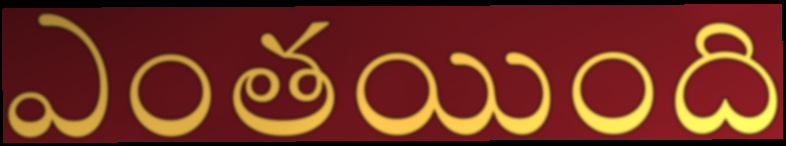
ఎంతయింది